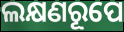
ଲକ୍ଷଣରୂପେ